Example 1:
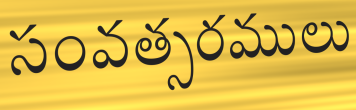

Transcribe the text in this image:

సంవత్సరములు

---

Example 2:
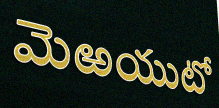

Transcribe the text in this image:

మెఱయుటో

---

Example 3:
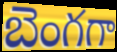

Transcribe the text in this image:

బెంగగా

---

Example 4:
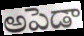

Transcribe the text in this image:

అపెడా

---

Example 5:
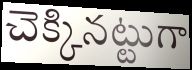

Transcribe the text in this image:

చెక్కినట్టుగా